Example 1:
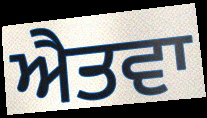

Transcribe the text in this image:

ਐਤਵਾ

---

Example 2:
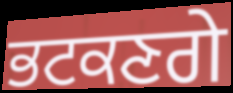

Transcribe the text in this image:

ਭਟਕਣਗੇ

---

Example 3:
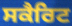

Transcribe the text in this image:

ਸਕੈਰਿਟ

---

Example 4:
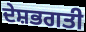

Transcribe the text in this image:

ਦੇਸ਼ਭਗਤੀ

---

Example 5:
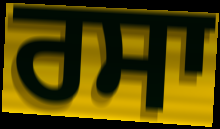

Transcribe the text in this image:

ਰਸਾ